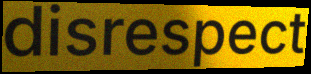
disrespect